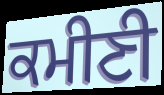
ਕਮੀਣੀ